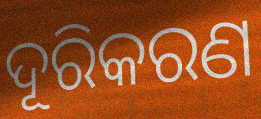
ଦୂରିକରଣ